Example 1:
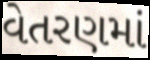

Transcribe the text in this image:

વેતરણમાં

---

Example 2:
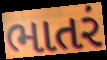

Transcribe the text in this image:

ભાતરં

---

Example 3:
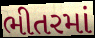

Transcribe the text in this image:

ભીતરમાં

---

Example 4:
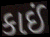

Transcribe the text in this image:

કાઈં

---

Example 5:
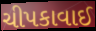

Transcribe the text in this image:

ચીપકાવાઈ